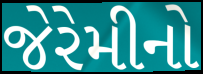
જેરેમીનો